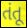
તંતૂ